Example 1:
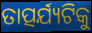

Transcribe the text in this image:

ତାତ୍ପର୍ଯ୍ୟଟିକୁ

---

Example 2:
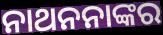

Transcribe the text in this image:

ନାଥନନାଙ୍କର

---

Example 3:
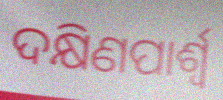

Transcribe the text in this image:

ଦକ୍ଷିଣପାର୍ଶ୍ବ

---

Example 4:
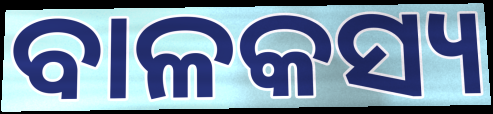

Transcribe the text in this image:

ବାଳକସ୍ୟ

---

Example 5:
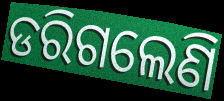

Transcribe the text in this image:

ଡରିଗଲେଣି